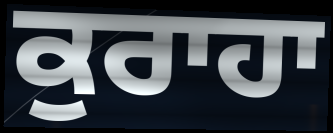
ਕੁਰਾਹਾ